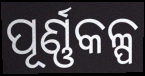
ପୂର୍ଣ୍ଣକଳ୍ପ